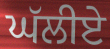
ਘੱਲੀਏ